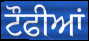
ਟੌਫੀਆਂ